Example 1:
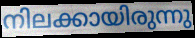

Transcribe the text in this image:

നിലക്കായിരുന്നു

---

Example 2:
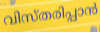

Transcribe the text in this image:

വിസ്തരിപ്പാൻ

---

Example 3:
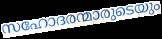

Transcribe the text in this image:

സഹോദരന്മാരുടെയും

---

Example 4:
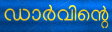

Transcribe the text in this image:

ഡാർവിന്റെ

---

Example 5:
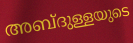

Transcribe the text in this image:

അബ്ദുള്ളയുടെ